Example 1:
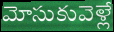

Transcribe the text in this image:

మోసుకువెళ్లే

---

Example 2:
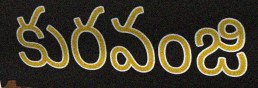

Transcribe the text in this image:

కురవంజి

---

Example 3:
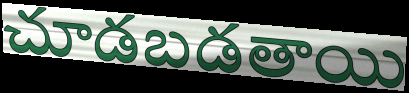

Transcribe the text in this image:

చూడబడతాయి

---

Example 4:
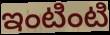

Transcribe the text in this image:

ఇంటింటి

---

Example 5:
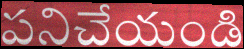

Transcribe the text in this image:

పనిచేయండి